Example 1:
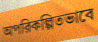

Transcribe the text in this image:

অপরিকল্পিতভাবে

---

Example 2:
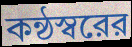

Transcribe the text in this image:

কন্ঠস্বরের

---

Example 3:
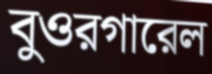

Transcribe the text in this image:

বুওরগারেল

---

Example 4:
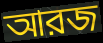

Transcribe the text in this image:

আরজ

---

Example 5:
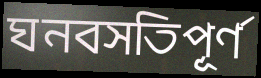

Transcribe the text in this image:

ঘনবসতিপূর্ণ